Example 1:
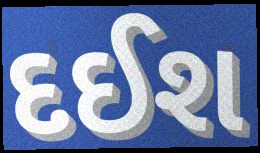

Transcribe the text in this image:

દઈશ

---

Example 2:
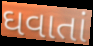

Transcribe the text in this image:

ઘવાતાં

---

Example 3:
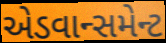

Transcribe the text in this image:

એડવાન્સમેન્ટ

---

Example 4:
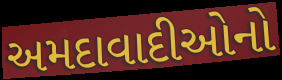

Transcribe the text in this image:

અમદાવાદીઓનો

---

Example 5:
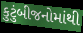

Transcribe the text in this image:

કુટુંબીજનોમાંથી